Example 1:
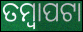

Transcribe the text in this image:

ତମ୍ବାପଟା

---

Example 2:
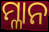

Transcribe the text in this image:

ମ୍ଳାନ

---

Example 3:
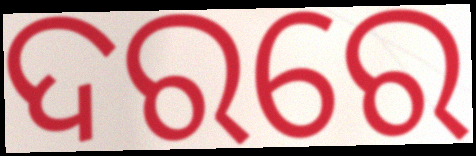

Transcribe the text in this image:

ଦରରେ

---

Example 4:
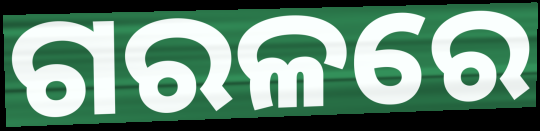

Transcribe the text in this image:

ଗରଳରେ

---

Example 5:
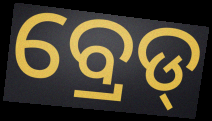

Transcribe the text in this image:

ବ୍ରେଡ୍